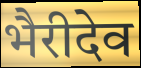
भैरीदेव